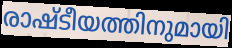
രാഷ്ടീയത്തിനുമായി